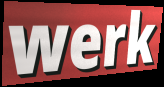
werk